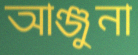
আঞ্জুনা